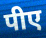
पीए